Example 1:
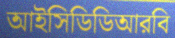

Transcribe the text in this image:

আইসিডিডিআরবি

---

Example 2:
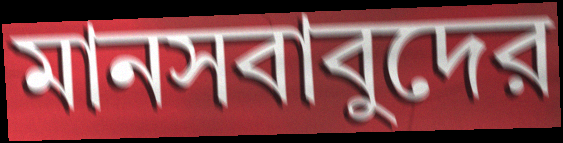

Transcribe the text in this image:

মানসবাবুদের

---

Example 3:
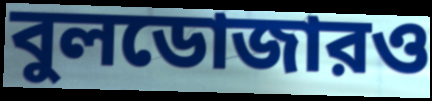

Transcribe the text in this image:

বুলডোজারও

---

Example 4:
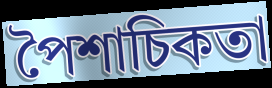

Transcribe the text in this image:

পৈশাচিকতা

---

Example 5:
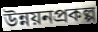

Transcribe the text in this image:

উন্নয়নপ্রকল্প